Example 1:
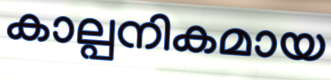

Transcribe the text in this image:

കാല്പനികമായ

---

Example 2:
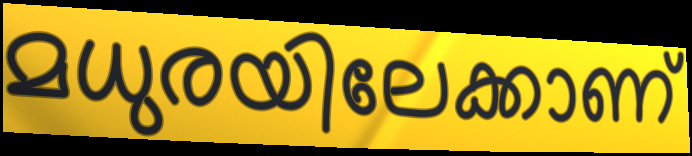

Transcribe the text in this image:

മധുരയിലേക്കാണ്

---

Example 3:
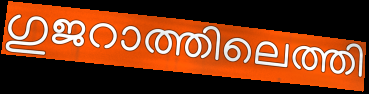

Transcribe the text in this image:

ഗുജറാത്തിലെത്തി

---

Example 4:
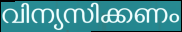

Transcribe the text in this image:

വിന്യസിക്കണം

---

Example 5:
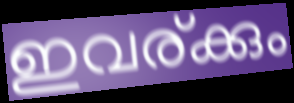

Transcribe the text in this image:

ഇവര്ക്കും